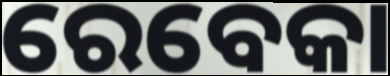
ରେବେକା